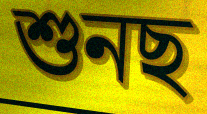
শুনছ